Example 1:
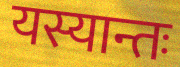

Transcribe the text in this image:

यस्यान्तः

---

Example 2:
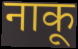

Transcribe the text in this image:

नाकू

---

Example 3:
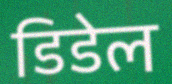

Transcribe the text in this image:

डिडेल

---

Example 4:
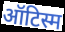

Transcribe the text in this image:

ऑटिस्म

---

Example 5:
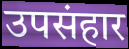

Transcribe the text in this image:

उपसंहार